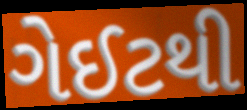
ગેઈટથી